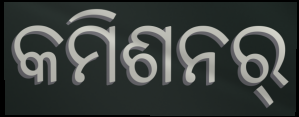
କମିଶନର୍